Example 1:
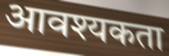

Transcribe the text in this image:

आवश्‍यकता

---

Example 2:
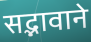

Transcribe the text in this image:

सद्भावाने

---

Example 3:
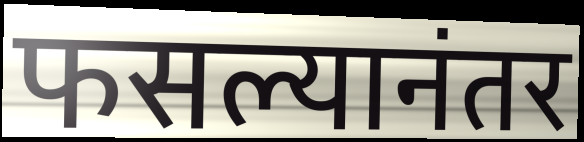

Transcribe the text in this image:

फसल्यानंतर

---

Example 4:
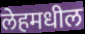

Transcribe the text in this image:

लेहमधील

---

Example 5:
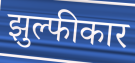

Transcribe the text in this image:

झुल्फीकार